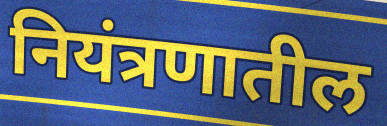
नियंत्रणातील